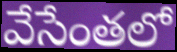
వేసేంతలో